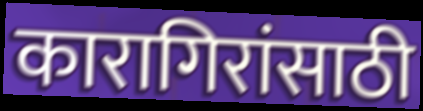
कारागिरांसाठी